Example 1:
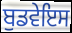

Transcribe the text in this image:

ਬੁਡਵੇਇਸ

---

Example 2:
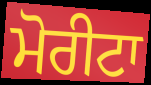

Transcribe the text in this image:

ਮੋਰੀਟਾ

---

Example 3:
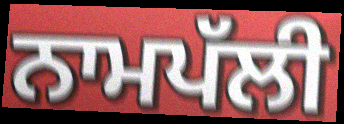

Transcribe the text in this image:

ਨਾਮਪੱਲੀ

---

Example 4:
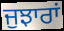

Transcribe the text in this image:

ਜੁਝਾਰਾਂ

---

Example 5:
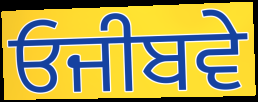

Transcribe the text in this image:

ਓਜੀਬਵੇ